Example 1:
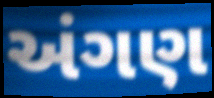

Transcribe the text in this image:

અંગણ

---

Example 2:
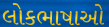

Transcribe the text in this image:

લોકભાષાઓ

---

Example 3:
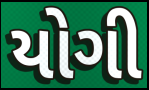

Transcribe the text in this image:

યોગી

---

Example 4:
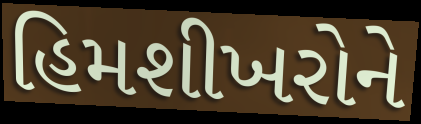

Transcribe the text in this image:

હિમશીખરોને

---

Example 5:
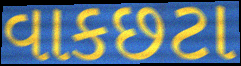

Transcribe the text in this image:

વાકછટા